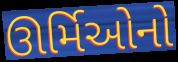
ઊર્મિઓનો